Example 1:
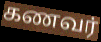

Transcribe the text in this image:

கணவர்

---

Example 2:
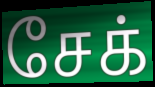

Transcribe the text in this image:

சேக்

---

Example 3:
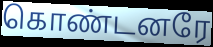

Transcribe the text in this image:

கொண்டனரே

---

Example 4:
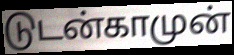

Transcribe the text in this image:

டுடன்காமுன்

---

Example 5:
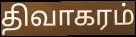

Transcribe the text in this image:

திவாகரம்